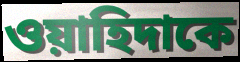
ওয়াহিদাকে